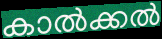
കാൽക്കൽ